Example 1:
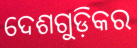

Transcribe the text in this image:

ଦେଶଗୁଡ଼ିକର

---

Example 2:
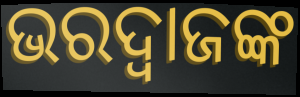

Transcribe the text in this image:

ଭରଦ୍ବାଜଙ୍କ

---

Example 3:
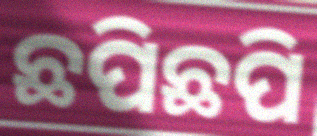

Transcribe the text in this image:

ଛପିଛପି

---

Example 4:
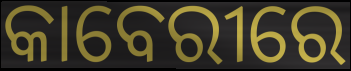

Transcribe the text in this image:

କାବେରୀରେ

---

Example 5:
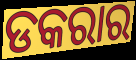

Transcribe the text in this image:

ଡକରାର